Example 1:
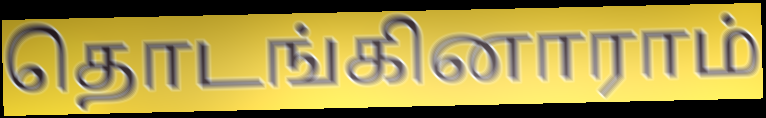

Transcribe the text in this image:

தொடங்கினாராம்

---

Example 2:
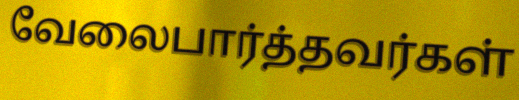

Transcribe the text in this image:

வேலைபார்த்தவர்கள்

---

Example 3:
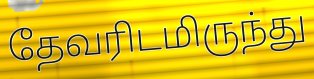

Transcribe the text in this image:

தேவரிடமிருந்து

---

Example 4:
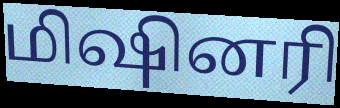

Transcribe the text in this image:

மிஷினரி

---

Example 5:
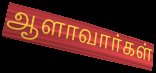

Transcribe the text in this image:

ஆளாவார்கள்